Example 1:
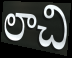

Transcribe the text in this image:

లాచి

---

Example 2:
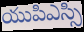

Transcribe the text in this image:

యుపిఎస్సి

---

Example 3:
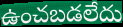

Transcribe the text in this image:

ఉంచబడలేదు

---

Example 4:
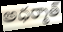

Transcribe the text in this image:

అధర్మాత్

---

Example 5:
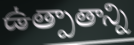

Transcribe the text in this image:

ఉత్పాతాన్ని